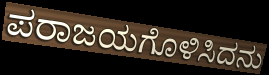
ಪರಾಜಯಗೊಳಿಸಿದನು